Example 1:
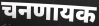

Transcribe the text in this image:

चनणायक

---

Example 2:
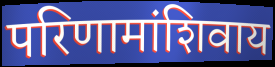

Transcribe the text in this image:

परिणामांशिवाय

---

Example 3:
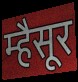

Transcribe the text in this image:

म्हैसूर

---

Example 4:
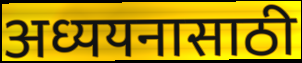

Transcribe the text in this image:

अध्ययनासाठी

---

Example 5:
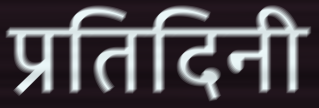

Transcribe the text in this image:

प्रतिदिनी